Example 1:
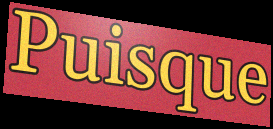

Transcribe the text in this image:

Puisque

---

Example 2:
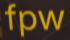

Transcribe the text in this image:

fpw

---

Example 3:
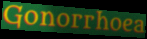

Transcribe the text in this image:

Gonorrhoea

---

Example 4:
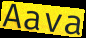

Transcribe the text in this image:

Aava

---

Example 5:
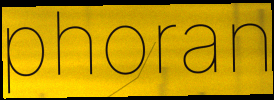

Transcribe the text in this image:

phoran